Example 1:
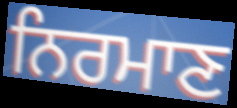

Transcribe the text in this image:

ਨਿਰਮਾਣ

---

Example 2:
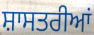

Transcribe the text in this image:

ਸ਼ਾਸਤਰੀਆਂ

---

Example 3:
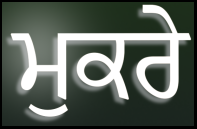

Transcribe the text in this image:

ਮੁਕਰੇ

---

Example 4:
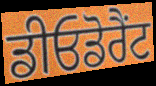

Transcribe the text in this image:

ਡੀਓਡੋਰੈਂਟ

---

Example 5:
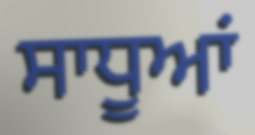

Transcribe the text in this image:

ਸਾਧੂਆਂ